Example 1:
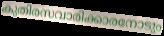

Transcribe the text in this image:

കുതിരസവാരിക്കാരനോടും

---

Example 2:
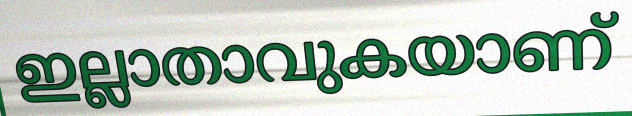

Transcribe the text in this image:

ഇല്ലാതാവുകയാണ്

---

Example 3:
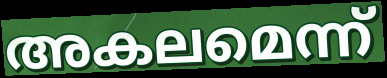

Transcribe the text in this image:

അകലമെന്ന്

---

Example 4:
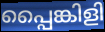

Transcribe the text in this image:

പ്പൈങ്കിളി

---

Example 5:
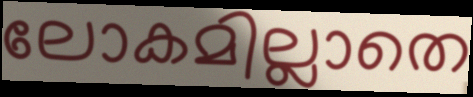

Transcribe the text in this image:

ലോകമില്ലാതെ